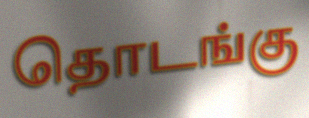
தொடங்கு